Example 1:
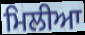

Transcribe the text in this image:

ਮਿਲੀਆ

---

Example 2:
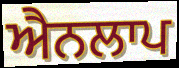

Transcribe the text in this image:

ਐਨਲਾਪ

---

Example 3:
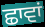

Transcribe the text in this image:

ਛਾਵਾਂ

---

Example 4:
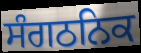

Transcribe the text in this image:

ਸੰਗਠਨਿਕ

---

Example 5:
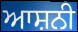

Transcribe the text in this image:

ਆਸ਼ਨੀ